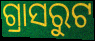
ଗ୍ରାସରୁଟ